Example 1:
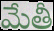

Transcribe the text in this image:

మేతీ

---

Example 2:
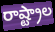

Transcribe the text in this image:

రాష్ట్రాల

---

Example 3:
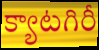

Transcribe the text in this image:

క్యాటగిరీ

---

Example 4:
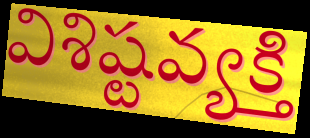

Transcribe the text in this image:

విశిష్టవ్యక్తి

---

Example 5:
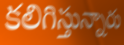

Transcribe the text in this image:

కలిగిస్తున్నారు